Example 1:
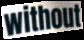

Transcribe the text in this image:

without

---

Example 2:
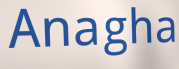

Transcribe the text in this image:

Anagha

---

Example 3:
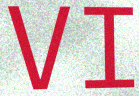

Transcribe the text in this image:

VI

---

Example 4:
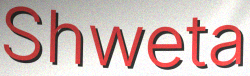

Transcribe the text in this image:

Shweta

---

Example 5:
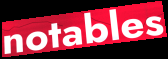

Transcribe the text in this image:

notables